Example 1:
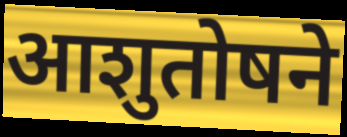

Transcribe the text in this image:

आशुतोषने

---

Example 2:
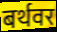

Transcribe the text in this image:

बर्थवर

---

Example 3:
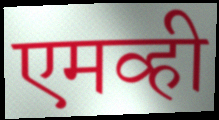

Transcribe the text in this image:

एमव्ही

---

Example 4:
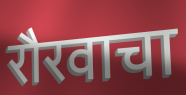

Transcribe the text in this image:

रौरवाचा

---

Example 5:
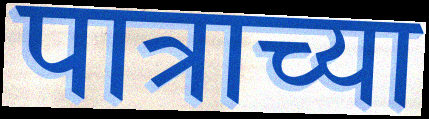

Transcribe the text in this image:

पात्राच्‍या